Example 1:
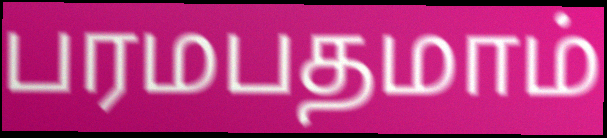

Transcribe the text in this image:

பரமபதமாம்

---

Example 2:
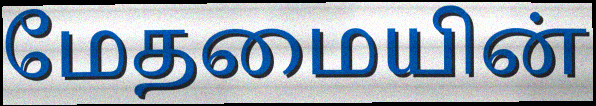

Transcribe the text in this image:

மேதமையின்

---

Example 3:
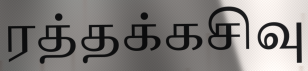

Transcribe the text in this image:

ரத்தக்கசிவு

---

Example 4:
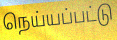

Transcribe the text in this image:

நெய்யப்பட்டு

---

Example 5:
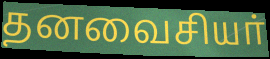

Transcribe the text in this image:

தனவைசியர்